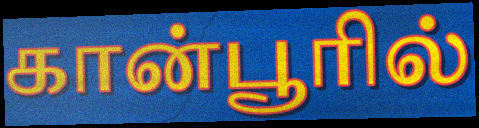
கான்பூரில்